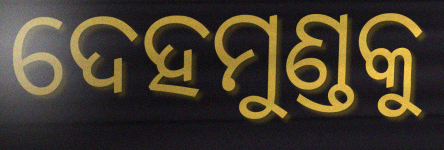
ଦେହମୁଣ୍ଡକୁ